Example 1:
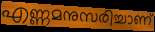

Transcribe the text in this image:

എണ്ണമനുസരിച്ചാണ്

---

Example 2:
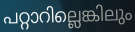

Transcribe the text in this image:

പറ്റാറില്ലെങ്കിലും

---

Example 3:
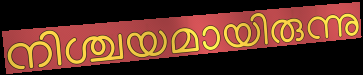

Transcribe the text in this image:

നിശ്ചയമായിരുന്നു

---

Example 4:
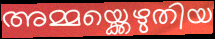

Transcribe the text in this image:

അമ്മയ്ക്കെഴുതിയ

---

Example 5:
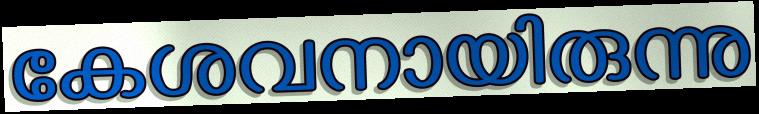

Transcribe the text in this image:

കേശവനായിരുന്നു